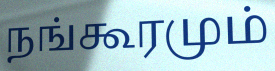
நங்கூரமும்